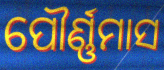
ପୌର୍ଣ୍ଣମାସ